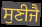
ਸੁਣੀਜੈ